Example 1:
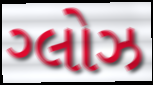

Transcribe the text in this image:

ગ્લોઝ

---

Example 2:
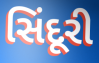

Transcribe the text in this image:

સિંદૂરી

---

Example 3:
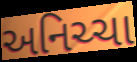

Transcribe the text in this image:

અનિચ્ચા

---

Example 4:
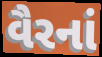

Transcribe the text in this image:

વૈરનાં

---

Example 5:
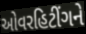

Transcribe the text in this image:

ઓવરહિટીંગને